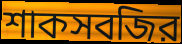
শাকসবজির